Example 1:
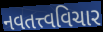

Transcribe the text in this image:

નવતત્ત્વવિચાર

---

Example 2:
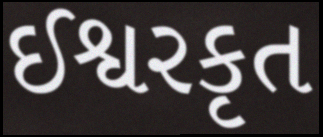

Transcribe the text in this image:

ઈશ્વરકૃત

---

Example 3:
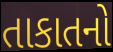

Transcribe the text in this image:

તાકાતનો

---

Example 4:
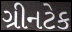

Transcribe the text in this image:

ગ્રીનટેક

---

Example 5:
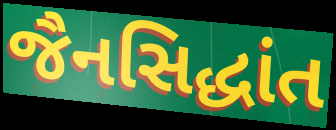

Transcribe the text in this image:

જૈનસિદ્ધાંત